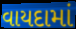
વાયદામાં